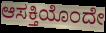
ಆಸಕ್ತಿಯೊಂದೇ